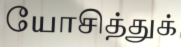
யோசித்துக்